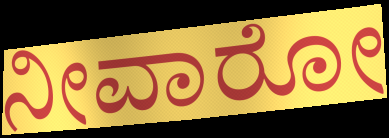
ನೀವಾರೋ